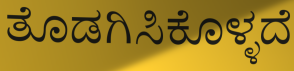
ತೊಡಗಿಸಿಕೊಳ್ಳದೆ